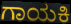
ಗಾಯಕಿ